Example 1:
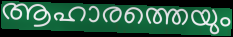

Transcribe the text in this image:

ആഹാരത്തെയും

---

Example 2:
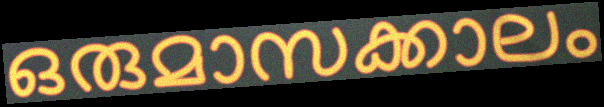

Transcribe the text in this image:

ഒരുമാസക്കാലം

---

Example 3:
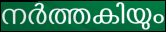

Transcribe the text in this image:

നർത്തകിയും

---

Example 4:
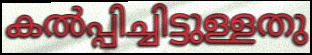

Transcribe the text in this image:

കൽപ്പിച്ചിട്ടുള്ളതു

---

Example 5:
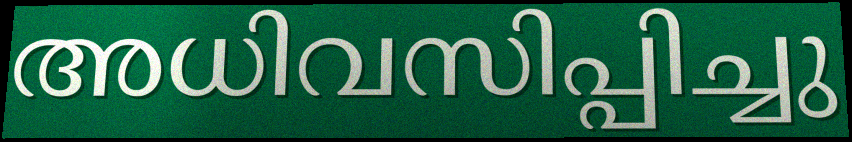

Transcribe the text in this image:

അധിവസിപ്പിച്ചു